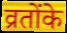
व्रतोंके